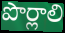
పొర్లాలి